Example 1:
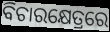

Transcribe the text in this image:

ବିଚାରକ୍ଷେତ୍ରରେ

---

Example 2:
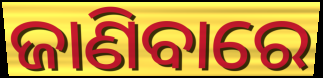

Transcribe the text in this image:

ଜାଣିବାରେ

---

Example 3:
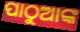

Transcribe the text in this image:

ପାଠୁଆଙ୍କ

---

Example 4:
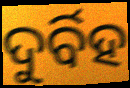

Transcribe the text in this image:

ଦୁର୍ବିହ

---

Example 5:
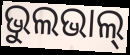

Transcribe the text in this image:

ଭୁଲଭାଲ୍